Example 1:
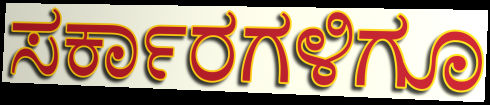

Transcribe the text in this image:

ಸರ್ಕಾರಗಳಿಗೂ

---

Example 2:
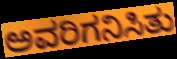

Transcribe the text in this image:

ಅವರಿಗನಿಸಿತು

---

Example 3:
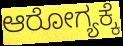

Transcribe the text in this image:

ಆರೋಗ್ಯಕ್ಕೆ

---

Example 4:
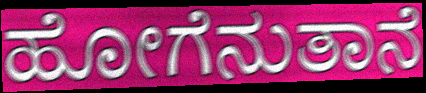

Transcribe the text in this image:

ಹೋಗೆನುತಾನೆ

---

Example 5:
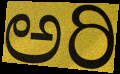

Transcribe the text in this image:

ಅರಿ